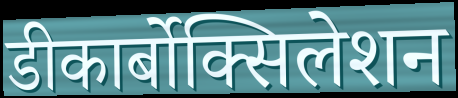
डीकार्बोक्सिलेशन